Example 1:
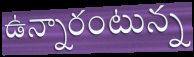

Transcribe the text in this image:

ఉన్నారంటున్న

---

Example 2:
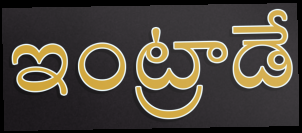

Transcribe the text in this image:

ఇంట్రాడే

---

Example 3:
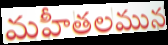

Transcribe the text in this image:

మహీతలమున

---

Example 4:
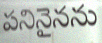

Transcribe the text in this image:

పనినైనను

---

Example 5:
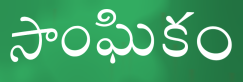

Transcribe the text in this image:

సాంఘికం